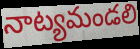
నాట్యమండలి